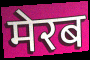
मेरब